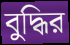
বুদ্ধির